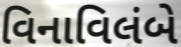
વિનાવિલંબે